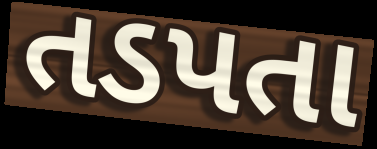
તડપતા